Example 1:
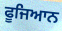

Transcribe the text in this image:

ਫੂਜਿਆਨ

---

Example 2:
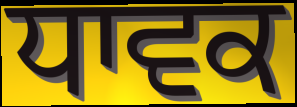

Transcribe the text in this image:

ਧਾਵਕ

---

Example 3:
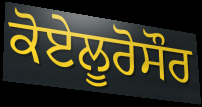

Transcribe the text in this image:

ਕੋਏਲੂਰੋਸੌਰ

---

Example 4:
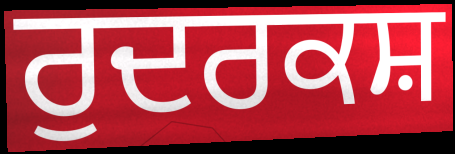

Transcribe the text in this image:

ਰੁਦਰਕਸ਼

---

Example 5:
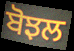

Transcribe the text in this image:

ਬੋਝਲ